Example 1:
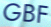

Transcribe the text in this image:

GBF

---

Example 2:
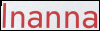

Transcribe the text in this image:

Inanna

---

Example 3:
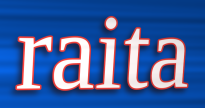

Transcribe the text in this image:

raita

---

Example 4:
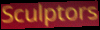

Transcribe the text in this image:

Sculptors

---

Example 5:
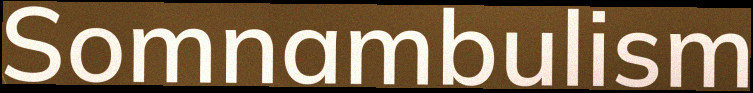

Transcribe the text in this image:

Somnambulism